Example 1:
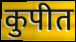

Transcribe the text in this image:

कुपीत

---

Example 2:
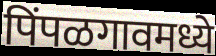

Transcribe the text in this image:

पिंपळगावमध्ये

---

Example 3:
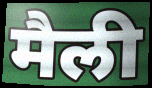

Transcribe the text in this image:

मैली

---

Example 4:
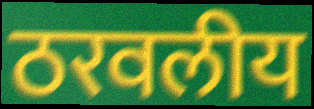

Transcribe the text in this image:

ठरवलीय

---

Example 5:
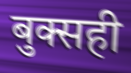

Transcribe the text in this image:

बुक्सही